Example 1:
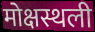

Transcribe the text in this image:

मोक्षस्थली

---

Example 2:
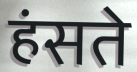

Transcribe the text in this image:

हंसते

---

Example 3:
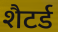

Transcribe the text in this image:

शैटर्ड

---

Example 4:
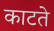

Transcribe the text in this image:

काटते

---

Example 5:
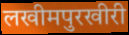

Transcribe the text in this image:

लखीमपुरखीरी